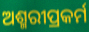
ଅଶ୍ମରୀପ୍ରକର୍ମ